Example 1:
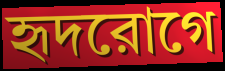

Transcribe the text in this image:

হৃদরোগে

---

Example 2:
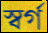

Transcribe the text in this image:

স্বর্গ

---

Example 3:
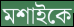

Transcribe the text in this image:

মশাইকে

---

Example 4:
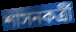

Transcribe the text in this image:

শাসনকর্ত্রী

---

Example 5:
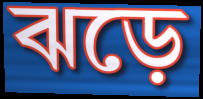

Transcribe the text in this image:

ঝড়ে